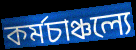
কর্মচাঞ্চল্যে